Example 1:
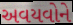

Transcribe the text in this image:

અવયવોને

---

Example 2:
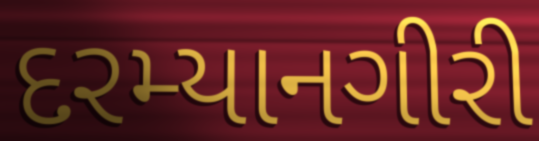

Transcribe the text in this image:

દરમ્યાનગીરી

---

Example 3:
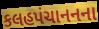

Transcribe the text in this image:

કલહપંચાનનના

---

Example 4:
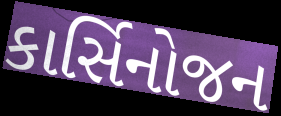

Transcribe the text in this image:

કાર્સિનોજન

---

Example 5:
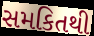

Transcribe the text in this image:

સમકિતથી